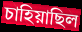
চাহিয়াছিল